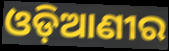
ଓଡ଼ିଆଣୀର